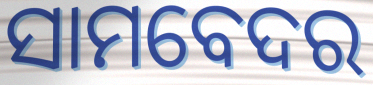
ସାମବେଦର